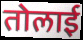
तोलाई